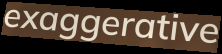
exaggerative